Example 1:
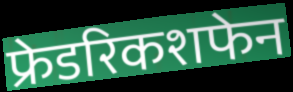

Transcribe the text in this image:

फ्रेडरिकशफेन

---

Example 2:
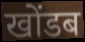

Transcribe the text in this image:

खोंडब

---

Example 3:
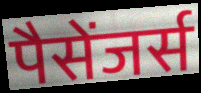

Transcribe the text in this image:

पैसेंजर्स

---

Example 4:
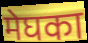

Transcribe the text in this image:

मेघका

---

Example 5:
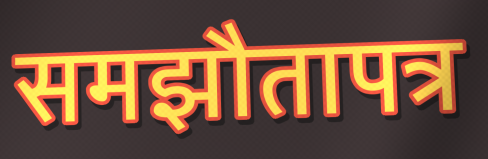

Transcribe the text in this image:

समझौतापत्र